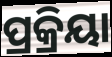
ପ୍ରକ୍ରିୟା